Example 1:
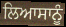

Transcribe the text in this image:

ਲਿਆਸਾਨੂੰ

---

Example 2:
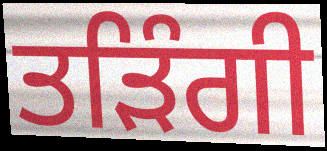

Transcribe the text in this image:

ਤੜਿੰਗੀ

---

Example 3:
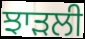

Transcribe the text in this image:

ਝਾੜਲੀ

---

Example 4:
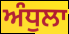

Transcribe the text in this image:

ਅੰਧੁਲਾ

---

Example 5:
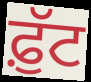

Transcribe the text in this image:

ਫ਼ੁੱਟ